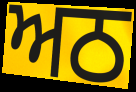
ਅਠ